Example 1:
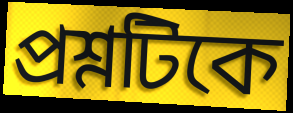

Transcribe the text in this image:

প্রশ্নটিকে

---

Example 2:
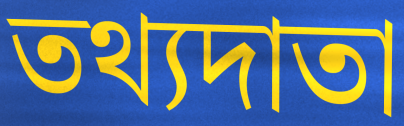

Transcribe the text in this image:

তথ্যদাতা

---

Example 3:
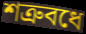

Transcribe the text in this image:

শত্রুবধে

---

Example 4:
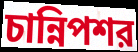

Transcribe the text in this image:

চান্নিপশর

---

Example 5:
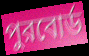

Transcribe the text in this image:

পুরবোর্ড